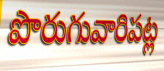
పొరుగువారిపట్ల